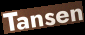
Tansen